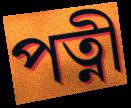
পত্নী